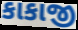
કાકાજી